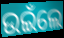
ଉଇଁଲେ